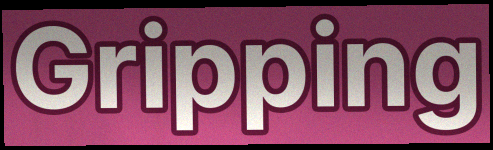
Gripping